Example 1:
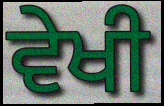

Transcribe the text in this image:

ਵੇਖੀ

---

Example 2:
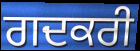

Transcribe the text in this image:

ਗਦਕਰੀ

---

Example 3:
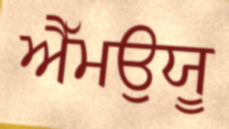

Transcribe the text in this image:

ਐੱਮਉਯੂ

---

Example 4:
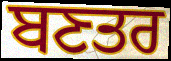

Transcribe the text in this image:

ਬਣਤਰ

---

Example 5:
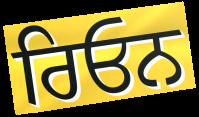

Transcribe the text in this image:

ਰਿਓਨ